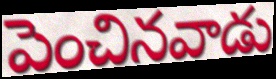
పెంచినవాడు